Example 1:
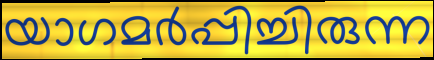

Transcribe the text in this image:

യാഗമർപ്പിച്ചിരുന്ന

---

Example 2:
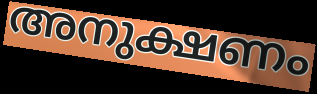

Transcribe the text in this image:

അനുക്ഷണം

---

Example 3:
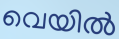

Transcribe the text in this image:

വെയിൽ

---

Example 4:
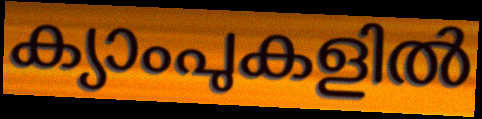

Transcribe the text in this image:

ക്യാംപുകളിൽ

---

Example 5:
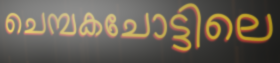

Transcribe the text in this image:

ചെമ്പകചോട്ടിലെ